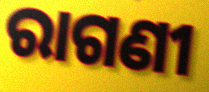
ରାଗଣୀ